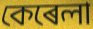
কেৰেলা